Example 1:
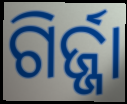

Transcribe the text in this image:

ଗିର୍ଜ୍ଜା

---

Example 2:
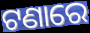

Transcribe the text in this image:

ଟଣାରେ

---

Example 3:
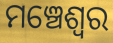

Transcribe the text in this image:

ମଞ୍ଚେଶ୍ଵର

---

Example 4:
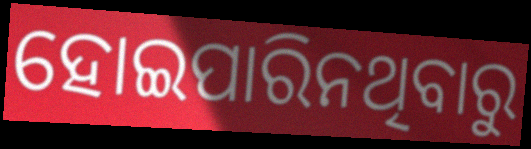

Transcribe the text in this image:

ହୋଇପାରିନଥିବାରୁ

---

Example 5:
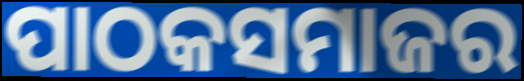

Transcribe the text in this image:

ପାଠକସମାଜର